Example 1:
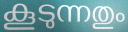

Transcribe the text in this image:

കൂടുന്നതും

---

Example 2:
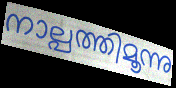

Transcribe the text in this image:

നാല്പത്തിമൂന്നു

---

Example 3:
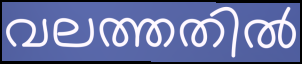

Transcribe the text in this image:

വലത്തതിൽ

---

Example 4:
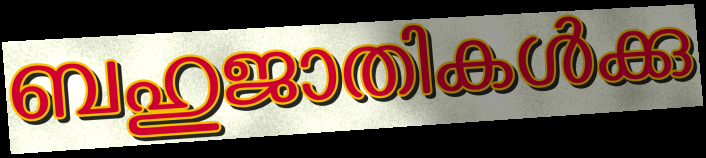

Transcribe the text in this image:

ബഹുജാതികൾക്കു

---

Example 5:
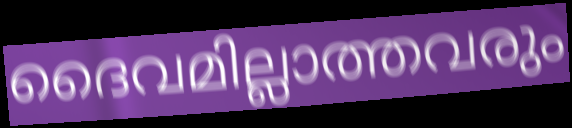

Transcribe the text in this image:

ദൈവമില്ലാത്തവരും